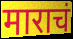
माराचं